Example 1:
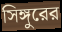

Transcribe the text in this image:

সিঙ্গুরের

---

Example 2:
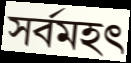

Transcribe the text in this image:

সর্বমহৎ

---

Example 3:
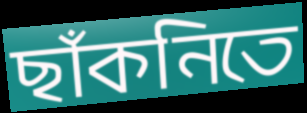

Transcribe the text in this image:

ছাঁকনিতে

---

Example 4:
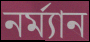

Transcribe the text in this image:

নর্ম্যান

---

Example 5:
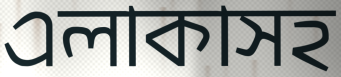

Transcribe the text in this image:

এলাকাসহ